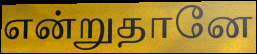
என்றுதானே